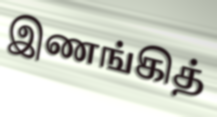
இணங்கித்